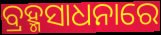
ବ୍ରହ୍ମସାଧନାରେ